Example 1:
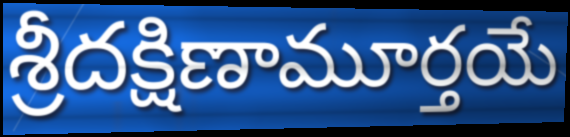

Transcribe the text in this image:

శ్రీదక్షిణామూర్తయే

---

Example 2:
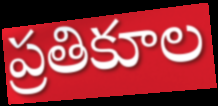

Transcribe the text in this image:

ప్రతికూల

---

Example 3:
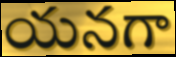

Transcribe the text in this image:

యనగా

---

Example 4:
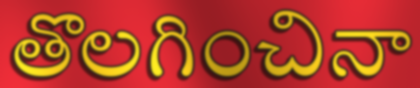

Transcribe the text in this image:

తొలగించినా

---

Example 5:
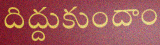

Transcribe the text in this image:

దిద్దుకుందాం